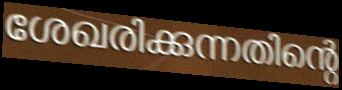
ശേഖരിക്കുന്നതിന്റെ